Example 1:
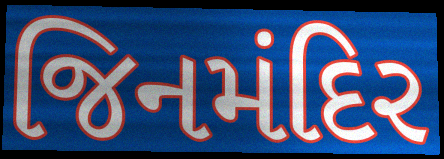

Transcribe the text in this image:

જિનમંદિર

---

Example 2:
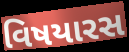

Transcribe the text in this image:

વિષયારસ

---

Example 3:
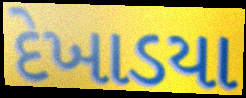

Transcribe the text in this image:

દેખાડયા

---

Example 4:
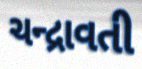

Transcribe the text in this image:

ચન્દ્રાવતી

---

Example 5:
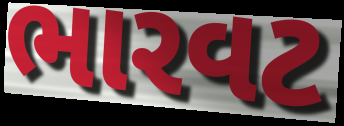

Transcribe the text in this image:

ભારવટ